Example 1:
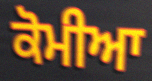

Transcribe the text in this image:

ਕੋਮੀਆ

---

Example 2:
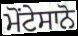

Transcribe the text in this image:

ਮੋਂਟੇਸਾਨੋ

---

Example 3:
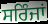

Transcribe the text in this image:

ਸਰਿੰਜਾਂ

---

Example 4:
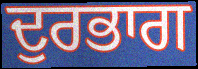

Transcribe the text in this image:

ਦੁਰਭਾਗ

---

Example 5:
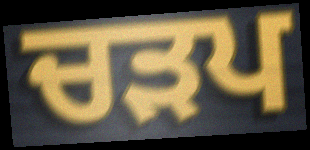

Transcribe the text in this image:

ਚੜਪ